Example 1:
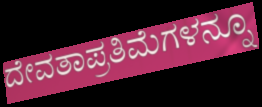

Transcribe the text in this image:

ದೇವತಾಪ್ರತಿಮೆಗಳನ್ನೂ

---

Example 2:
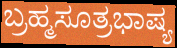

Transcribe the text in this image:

ಬ್ರಹ್ಮಸೂತ್ರಭಾಷ್ಯ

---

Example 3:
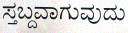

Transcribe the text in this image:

ಸ್ತಬ್ದವಾಗುವುದು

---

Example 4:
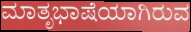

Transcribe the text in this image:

ಮಾತೃಭಾಷೆಯಾಗಿರುವ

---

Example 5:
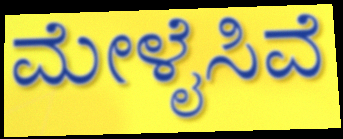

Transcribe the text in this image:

ಮೇಳೈಸಿವೆ